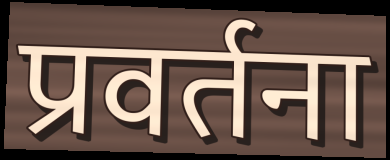
प्रवर्तना